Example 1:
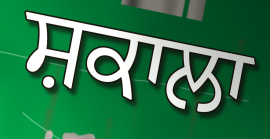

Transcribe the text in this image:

ਸ਼ਕਾਲਾ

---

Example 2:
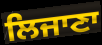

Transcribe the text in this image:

ਲਿਜਾਣਾ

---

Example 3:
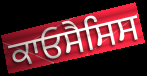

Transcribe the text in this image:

ਕਾਓਸੈਸਿਸ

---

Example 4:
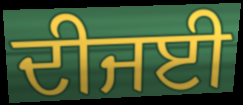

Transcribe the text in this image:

ਦੀਜਈ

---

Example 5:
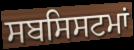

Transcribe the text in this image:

ਸਬਸਿਸਟਮਾਂ